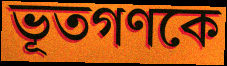
ভূতগণকে